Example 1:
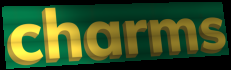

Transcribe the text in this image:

charms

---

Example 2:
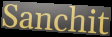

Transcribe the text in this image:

Sanchit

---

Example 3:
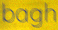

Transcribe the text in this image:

bagh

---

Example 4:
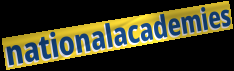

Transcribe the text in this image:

nationalacademies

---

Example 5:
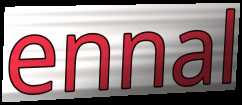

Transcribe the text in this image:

ennal